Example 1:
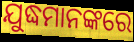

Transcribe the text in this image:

ଯୁଦ୍ଧମାନଙ୍କରେ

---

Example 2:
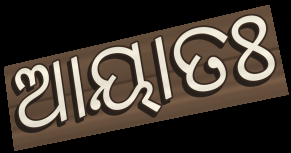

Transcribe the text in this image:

ଆୟାତଃ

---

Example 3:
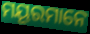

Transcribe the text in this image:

ମୟୂରମାନେ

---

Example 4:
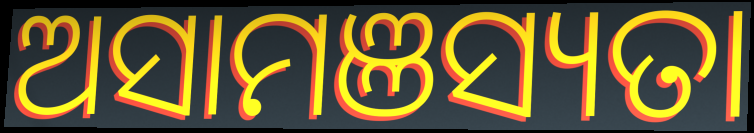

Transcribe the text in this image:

ଅସାମଞସ୍ୟତା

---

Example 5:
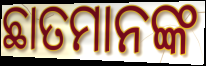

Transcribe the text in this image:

ଛାତମାନଙ୍କ